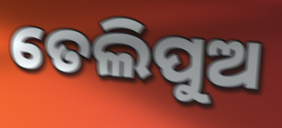
ତେଲିପୁଅ